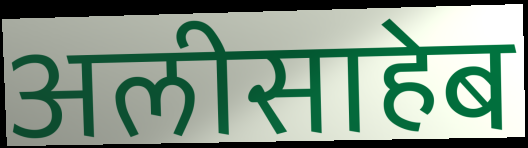
अलीसाहेब